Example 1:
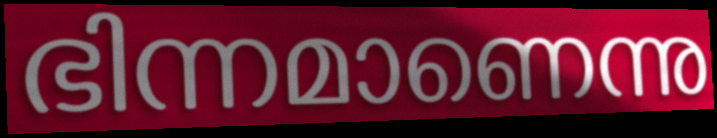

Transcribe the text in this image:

ഭിന്നമാണെന്നു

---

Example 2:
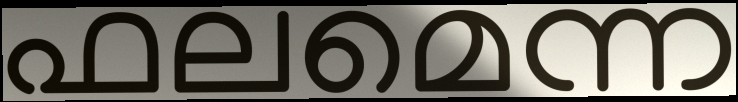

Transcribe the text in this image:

ഫലമെന്ന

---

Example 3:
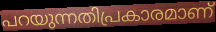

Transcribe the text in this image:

പറയുന്നതിപ്രകാരമാണ്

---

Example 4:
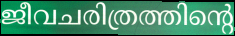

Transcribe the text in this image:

ജീവചരിത്രത്തിന്റെ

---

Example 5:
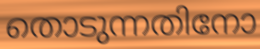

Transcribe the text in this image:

തൊടുന്നതിനോ